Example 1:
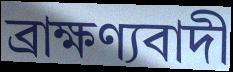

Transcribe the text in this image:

ব্রাক্ষণ্যবাদী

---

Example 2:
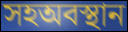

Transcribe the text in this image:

সহঅবস্থান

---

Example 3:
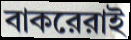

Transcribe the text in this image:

বাকরেরাই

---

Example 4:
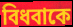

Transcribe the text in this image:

বিধবাকে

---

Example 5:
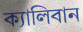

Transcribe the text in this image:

ক্যালিবান